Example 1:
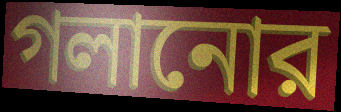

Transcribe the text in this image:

গলানোর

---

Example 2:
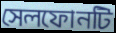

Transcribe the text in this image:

সেলফোনটি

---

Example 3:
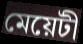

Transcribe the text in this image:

মেয়েটী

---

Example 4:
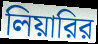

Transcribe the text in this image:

লিয়ারির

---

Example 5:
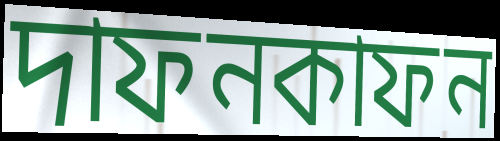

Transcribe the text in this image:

দাফনকাফন